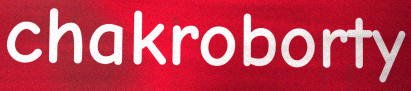
chakroborty